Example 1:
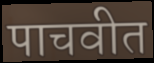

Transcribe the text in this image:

पाचवीत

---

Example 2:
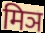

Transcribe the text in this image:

मिञ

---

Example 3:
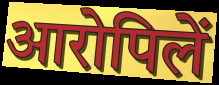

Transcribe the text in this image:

आरोपिलें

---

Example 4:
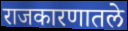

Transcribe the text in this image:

राजकारणातले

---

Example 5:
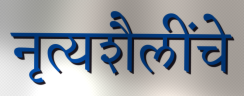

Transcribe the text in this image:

नृत्यशैलींचे